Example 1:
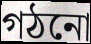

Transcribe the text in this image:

গঠনো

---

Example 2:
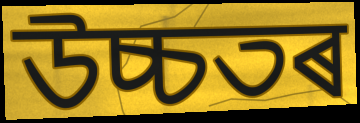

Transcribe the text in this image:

উচ্চতৰ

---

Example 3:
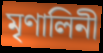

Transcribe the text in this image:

মৃণালিনী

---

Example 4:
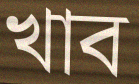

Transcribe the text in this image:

খাব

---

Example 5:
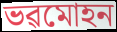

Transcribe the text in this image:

ভৱমোহন